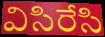
విసిరేసి